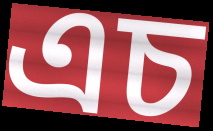
এচ